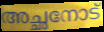
അച്ഛനോട്